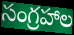
సంగ్రహాల